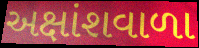
અક્ષાંશવાળા